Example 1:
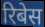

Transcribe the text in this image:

रिबेस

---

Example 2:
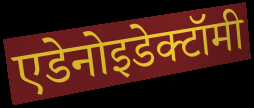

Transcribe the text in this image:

एडेनोइडेक्टॉमी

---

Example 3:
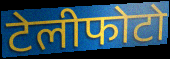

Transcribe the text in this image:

टेलीफोटो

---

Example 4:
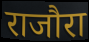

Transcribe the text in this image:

राजौरा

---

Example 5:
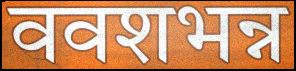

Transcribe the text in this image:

ववशभन्न